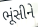
ભૂંસીને